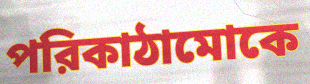
পরিকাঠামোকে